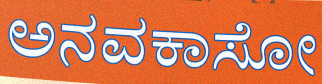
ಅನವಕಾಸೋ